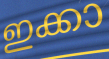
ഇക്കാ